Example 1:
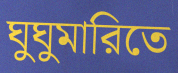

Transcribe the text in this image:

ঘুঘুমারিতে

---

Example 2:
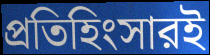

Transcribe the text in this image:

প্রতিহিংসারই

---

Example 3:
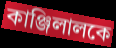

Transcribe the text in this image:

কাঞ্জিলালকে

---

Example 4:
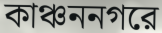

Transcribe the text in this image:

কাঞ্চননগরে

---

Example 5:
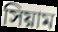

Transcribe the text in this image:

সিয়াম